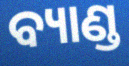
ବ୍ୟାଣ୍ଡ